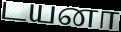
டயனா